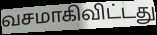
வசமாகிவிட்டது